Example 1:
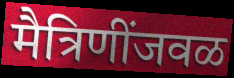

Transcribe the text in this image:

मैत्रिणींजवळ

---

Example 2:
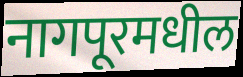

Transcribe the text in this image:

नागपूरमधील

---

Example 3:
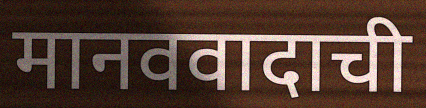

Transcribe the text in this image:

मानववादाची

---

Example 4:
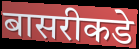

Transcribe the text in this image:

बासरीकडे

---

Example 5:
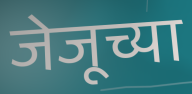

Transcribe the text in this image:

जेजूच्या